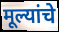
मूल्यांचे